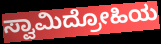
ಸ್ವಾಮಿದ್ರೋಹಿಯ